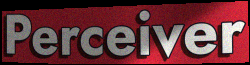
Perceiver